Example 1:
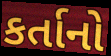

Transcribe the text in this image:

કર્તાનો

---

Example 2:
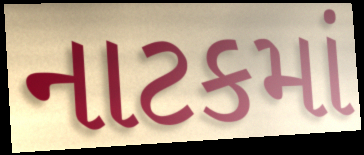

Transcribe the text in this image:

નાટકમાં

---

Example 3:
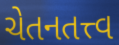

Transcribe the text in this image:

ચેતનતત્ત્વ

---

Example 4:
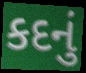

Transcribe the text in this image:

કદનું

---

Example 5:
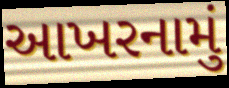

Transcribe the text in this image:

આખરનામું